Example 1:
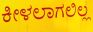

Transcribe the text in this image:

ಕೀಳಲಾಗಲಿಲ್ಲ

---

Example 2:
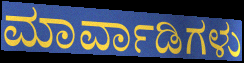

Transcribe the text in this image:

ಮಾರ್ವಾಡಿಗಳು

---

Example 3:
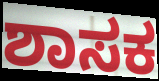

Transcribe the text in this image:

ಶಾಸಕ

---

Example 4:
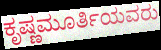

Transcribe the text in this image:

ಕೃಷ್ಣಮೂರ್ತಿಯವರು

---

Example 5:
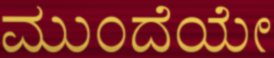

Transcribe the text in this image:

ಮುಂದೆಯೇ